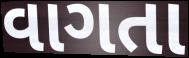
વાગતા